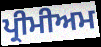
ਪ੍ਰੀਮੀਅਮ